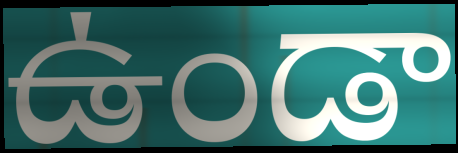
ఉండా